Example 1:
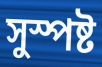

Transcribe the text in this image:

সুস্পষ্ট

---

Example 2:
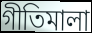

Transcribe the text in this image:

গীতিমালা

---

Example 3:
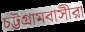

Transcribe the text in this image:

চট্টগ্রামবাসীরা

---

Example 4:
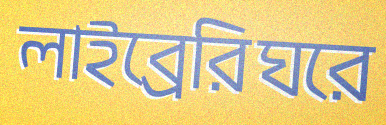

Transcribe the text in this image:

লাইব্রেরিঘরে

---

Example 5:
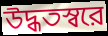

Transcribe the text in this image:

উদ্ধতস্বরে